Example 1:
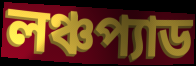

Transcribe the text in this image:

লঞ্চপ্যাড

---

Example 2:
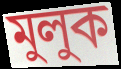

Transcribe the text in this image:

মুলুক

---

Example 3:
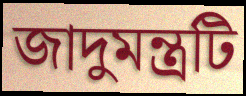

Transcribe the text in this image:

জাদুমন্ত্রটি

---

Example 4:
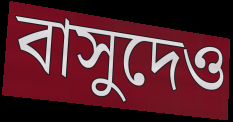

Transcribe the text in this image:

বাসুদেও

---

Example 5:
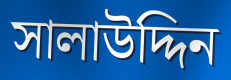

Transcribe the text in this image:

সালাউদ্দিন